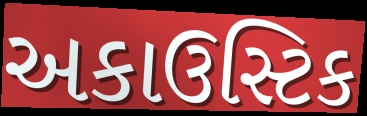
અકાઉસ્ટિક